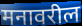
मनावरील